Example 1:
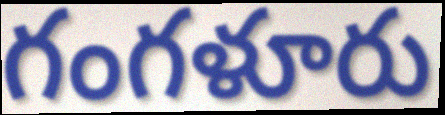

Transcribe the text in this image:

గంగళూరు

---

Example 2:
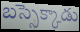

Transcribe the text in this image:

బస్సెక్కాడు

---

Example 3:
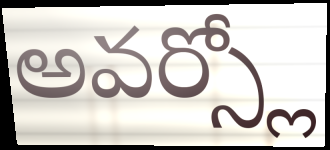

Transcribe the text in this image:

అవర్స్లో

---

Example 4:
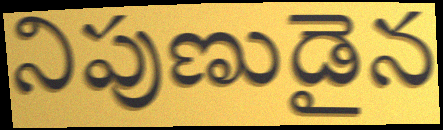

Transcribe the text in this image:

నిపుణుడైన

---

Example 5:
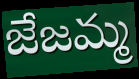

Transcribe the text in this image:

జేజమ్మ